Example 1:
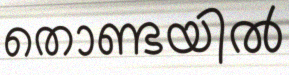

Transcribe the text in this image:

തൊണ്ടയിൽ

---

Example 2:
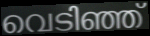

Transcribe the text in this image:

വെടിഞ്ഞ്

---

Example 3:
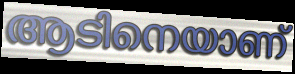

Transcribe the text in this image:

ആടിനെയാണ്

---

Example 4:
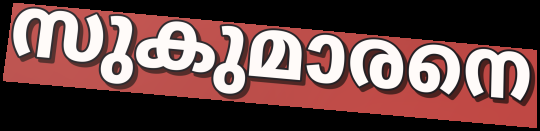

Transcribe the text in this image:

സുകുമാരനെ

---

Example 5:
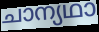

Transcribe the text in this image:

ചാന്യഥാ